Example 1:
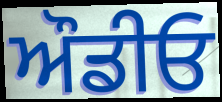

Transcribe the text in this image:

ਔਡੀਓ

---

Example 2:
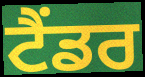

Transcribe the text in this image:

ਟੈਂਡਰ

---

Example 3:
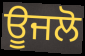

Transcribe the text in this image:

ਊਜਲੋ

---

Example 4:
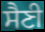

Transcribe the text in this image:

ਸੈਣੀ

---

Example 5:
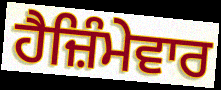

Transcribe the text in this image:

ਹੈਜ਼ਿੰਮੇਵਾਰ